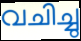
വചിച്ചു